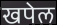
खपेल